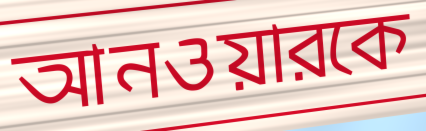
আনওয়ারকে